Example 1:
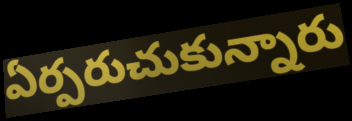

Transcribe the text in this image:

ఏర్పరుచుకున్నారు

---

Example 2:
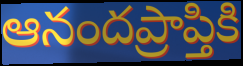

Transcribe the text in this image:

ఆనందప్రాప్తికి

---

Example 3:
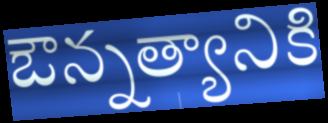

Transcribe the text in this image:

ఔన్నత్యానికి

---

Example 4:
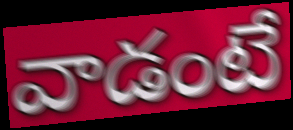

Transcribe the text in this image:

వాడంటే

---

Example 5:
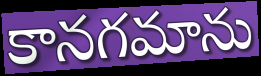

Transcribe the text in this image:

కానగమాను